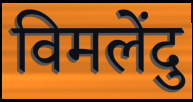
विमलेंदु